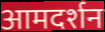
आमदर्शन